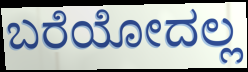
ಬರೆಯೋದಲ್ಲ